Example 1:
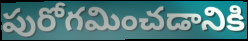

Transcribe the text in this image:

పురోగమించడానికి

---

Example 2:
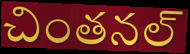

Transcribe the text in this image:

చింతనల్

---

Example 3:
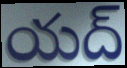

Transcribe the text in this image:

యద్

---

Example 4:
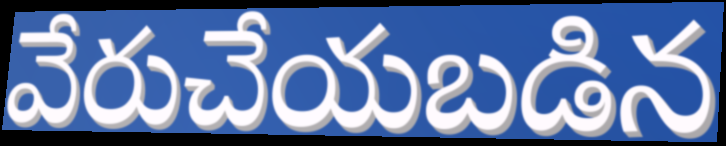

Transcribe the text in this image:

వేరుచేయబడిన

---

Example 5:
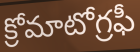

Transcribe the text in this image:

క్రోమాటోగ్రఫీ